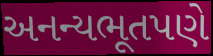
અનન્યભૂતપણે